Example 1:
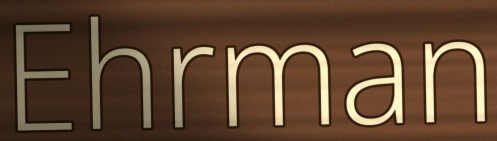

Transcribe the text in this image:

Ehrman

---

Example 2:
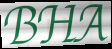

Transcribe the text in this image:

BHA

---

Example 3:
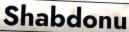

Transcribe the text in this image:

Shabdonu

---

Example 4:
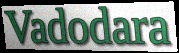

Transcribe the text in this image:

Vadodara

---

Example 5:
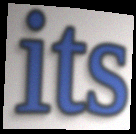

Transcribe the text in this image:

its